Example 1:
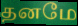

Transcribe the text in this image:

தனமே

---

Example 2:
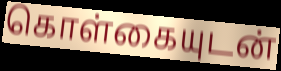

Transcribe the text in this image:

கொள்கையுடன்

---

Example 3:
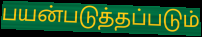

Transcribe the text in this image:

பயன்படுத்தப்படும்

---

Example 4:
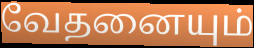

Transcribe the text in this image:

வேதனையும்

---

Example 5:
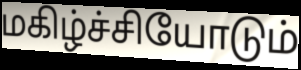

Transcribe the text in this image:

மகிழ்ச்சியோடும்